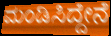
ಮಂಡಿಸಿದ್ದೇನೆ